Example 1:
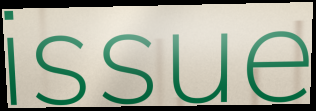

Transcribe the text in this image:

issue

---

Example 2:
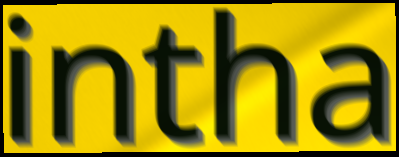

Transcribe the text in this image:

intha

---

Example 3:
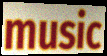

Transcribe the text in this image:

music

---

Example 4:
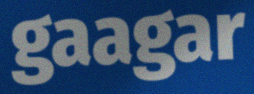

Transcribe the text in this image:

gaagar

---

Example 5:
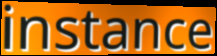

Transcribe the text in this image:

instance